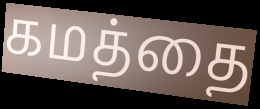
கமத்தை